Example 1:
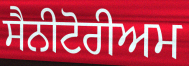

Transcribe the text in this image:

ਸੈਨੀਟੋਰੀਅਮ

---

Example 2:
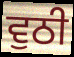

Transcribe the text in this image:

ਵੁਠੀ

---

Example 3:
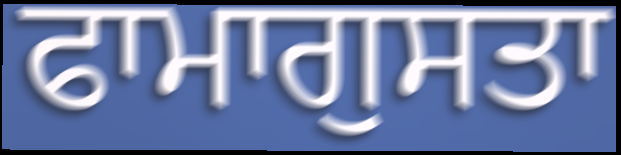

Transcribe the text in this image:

ਫਾਮਾਗੁਸਤਾ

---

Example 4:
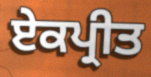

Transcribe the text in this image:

ਏਕਪ੍ਰੀਤ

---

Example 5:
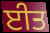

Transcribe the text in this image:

ਈਤ